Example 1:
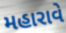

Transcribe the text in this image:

મહારાવે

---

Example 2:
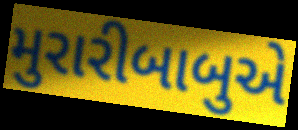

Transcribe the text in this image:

મુરારીબાબુએ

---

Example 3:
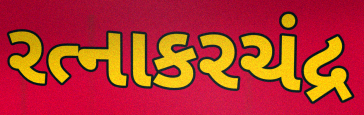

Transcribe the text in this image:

રત્નાકરચંદ્ર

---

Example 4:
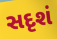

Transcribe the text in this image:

સદૃશં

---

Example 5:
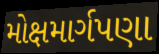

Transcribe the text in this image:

મોક્ષમાર્ગપણા